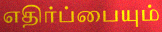
எதிர்ப்பையும்